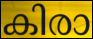
കിരാ